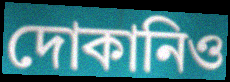
দোকানিও